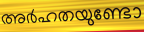
അർഹതയുണ്ടോ